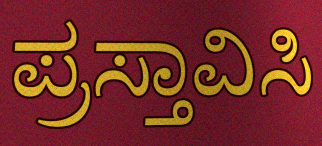
ಪ್ರಸ್ತಾವಿಸಿ